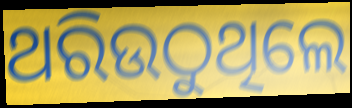
ଥରିଉଠୁଥିଲେ